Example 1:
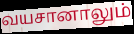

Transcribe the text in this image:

வயசானாலும்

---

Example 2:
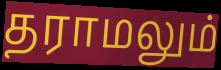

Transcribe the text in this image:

தராமலும்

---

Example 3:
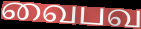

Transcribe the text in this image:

வைபவ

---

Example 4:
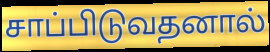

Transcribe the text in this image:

சாப்பிடுவதனால்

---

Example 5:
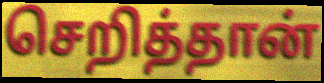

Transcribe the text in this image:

செறித்தான்